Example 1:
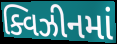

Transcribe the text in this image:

ક્વિઝીનમાં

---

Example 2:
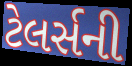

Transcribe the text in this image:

ટેલર્સની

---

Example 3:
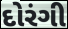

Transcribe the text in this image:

દોરંગી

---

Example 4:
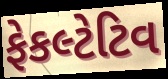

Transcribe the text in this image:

ફેકલ્ટેટિવ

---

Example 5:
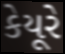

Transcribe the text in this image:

કેયૂરે